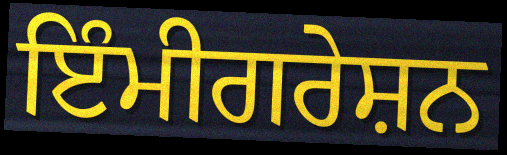
ਇੰਮੀਗਰੇਸ਼ਨ